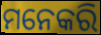
ମନେକରି